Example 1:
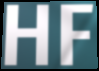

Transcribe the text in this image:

HF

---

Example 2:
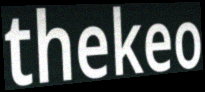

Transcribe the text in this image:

thekeo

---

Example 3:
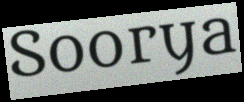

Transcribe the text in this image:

Soorya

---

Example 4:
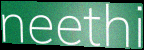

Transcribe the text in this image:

neethi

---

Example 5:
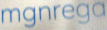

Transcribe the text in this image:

mgnrega